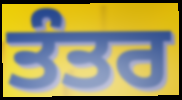
ਤੰਤਰ